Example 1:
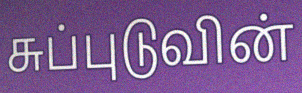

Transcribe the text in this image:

சுப்புடுவின்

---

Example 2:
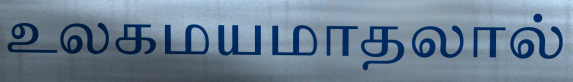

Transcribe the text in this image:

உலகமயமாதலால்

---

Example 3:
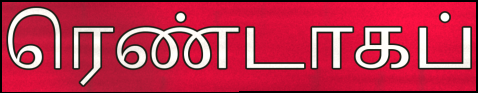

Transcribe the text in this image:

ரெண்டாகப்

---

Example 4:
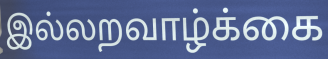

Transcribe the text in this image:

இல்லறவாழ்க்கை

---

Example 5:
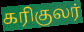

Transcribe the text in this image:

கரிகுலர்